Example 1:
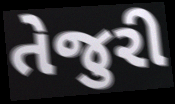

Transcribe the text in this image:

તેજુરી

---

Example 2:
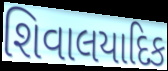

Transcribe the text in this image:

શિવાલયાદિક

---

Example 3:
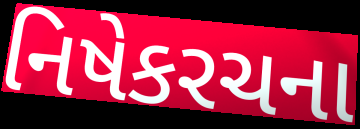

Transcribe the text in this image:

નિષેકરચના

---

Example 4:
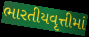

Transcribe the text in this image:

ભારતીયવૃત્તીમાં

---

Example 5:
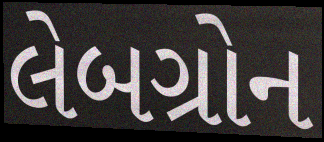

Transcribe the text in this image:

લેબગ્રોન